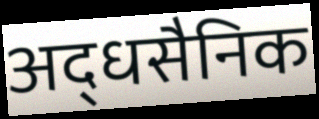
अद्धसैनिक